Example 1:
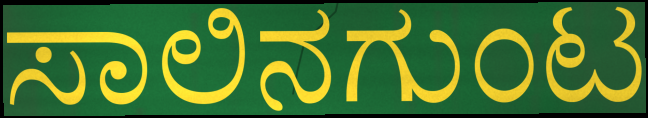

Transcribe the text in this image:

ಸಾಲಿನಗುಂಟ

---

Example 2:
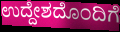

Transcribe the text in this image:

ಉದ್ದೇಶದೊಂದಿಗೆ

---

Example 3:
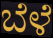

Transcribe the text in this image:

ಬೆಳೆ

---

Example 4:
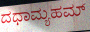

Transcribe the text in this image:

ದಧಾಮ್ಯಹಮ್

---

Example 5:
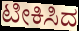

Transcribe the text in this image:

ಟೀಕಿಸಿದ